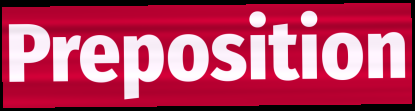
Preposition